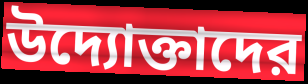
উদ্যোক্তাদের